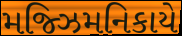
મજ્ઝિમનિકાયે